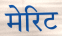
मेरिट